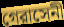
গেরাসেনী